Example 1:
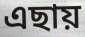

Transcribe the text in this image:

এছায়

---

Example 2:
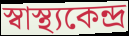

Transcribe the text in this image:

স্বাস্থ্যকেন্দ্র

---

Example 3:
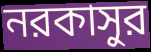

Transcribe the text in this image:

নরকাসুর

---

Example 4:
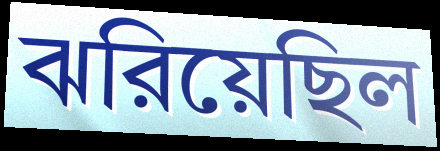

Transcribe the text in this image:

ঝরিয়েছিল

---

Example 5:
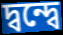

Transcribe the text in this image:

দ্বন্দ্বে